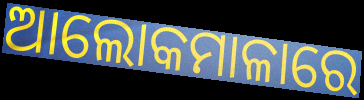
ଆଲୋକମାଳାରେ